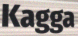
Kagga